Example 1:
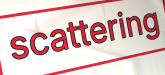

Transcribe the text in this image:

scattering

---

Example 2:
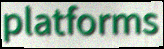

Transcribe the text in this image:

platforms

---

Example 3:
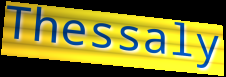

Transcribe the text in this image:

Thessaly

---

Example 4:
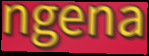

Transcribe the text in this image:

ngena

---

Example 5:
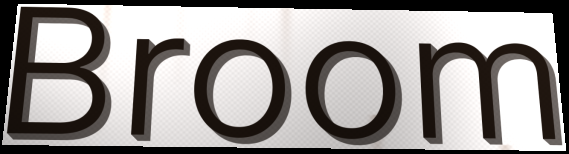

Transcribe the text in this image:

Broom